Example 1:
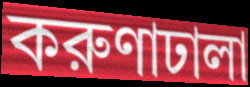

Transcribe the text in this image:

করুণাঢালা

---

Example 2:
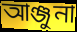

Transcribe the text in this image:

আঞ্জুনা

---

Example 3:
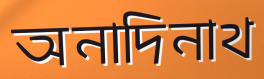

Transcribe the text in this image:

অনাদিনাথ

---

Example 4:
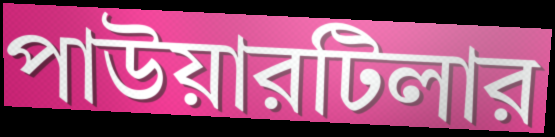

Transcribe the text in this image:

পাউয়ারটিলার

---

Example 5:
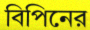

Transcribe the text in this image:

বিপিনের